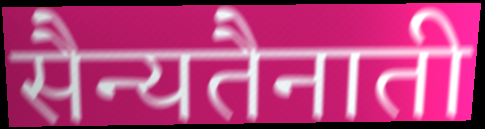
सैन्यतैनाती